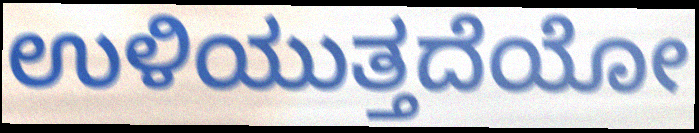
ಉಳಿಯುತ್ತದೆಯೋ